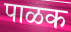
पाळक